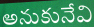
అనుకునేవి